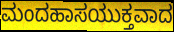
ಮಂದಹಾಸಯುಕ್ತವಾದ